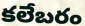
కలేబరం